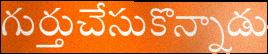
గుర్తుచేసుకొన్నాడు